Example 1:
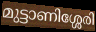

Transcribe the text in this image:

മുട്ടാണിശ്ശേരി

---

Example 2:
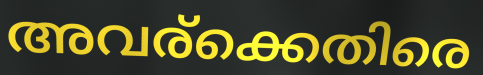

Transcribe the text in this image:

അവര്ക്കെതിരെ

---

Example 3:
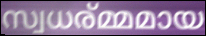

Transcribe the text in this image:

സ്വധര്മ്മമായ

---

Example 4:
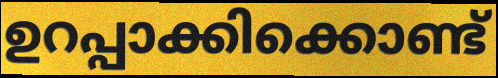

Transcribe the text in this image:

ഉറപ്പാക്കിക്കൊണ്ട്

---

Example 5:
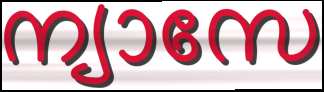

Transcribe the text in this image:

ന്യാസേ